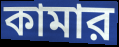
কামার